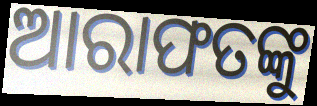
ଆରାଫତଙ୍କୁ